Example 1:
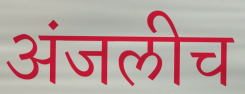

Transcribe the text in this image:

अंजलीच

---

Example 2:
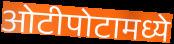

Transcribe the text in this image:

ओटीपोटामध्ये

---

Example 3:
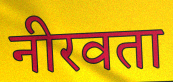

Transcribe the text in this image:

नीरवता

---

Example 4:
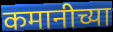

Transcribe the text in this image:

कमानीच्या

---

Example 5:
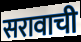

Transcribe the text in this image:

सरावाची